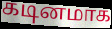
கடினமாக